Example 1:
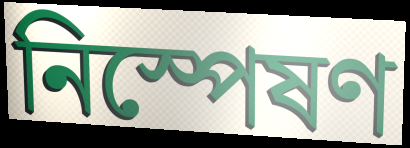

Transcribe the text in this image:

নিস্পেষণ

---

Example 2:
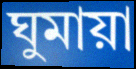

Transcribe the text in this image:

ঘুমায়া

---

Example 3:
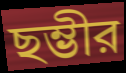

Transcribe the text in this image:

ছম্ভীর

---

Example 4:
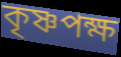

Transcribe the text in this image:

কৃষ্ণপক্ষ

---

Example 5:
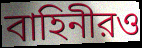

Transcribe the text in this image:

বাহিনীরও